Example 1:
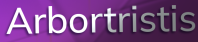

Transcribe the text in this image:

Arbortristis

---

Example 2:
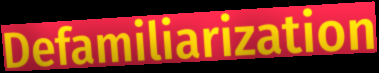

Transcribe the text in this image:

Defamiliarization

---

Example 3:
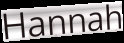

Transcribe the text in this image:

Hannah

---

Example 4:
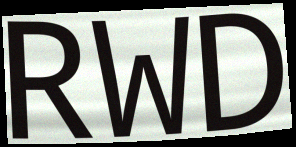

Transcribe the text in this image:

RWD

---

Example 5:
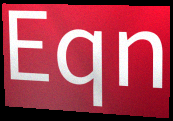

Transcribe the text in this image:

Eqn